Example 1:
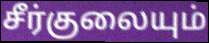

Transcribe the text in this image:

சீர்குலையும்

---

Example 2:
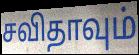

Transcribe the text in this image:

சவிதாவும்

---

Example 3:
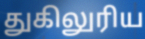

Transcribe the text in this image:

துகிலுரிய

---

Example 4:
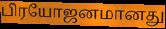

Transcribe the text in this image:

பிரயோஜனமானது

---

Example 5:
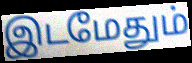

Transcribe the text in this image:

இடமேதும்